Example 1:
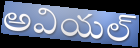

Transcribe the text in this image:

అవియల్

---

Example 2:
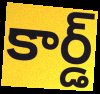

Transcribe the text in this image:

కార్డ్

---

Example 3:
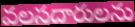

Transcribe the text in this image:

వలసదారులను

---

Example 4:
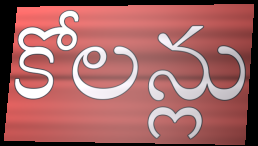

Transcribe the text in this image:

కోలన్లు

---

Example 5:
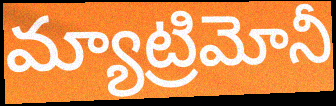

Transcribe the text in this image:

మ్యాట్రిమోనీ